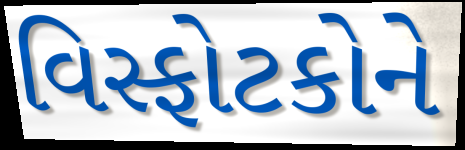
વિસ્ફોટકોને